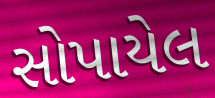
સોપાયેલ